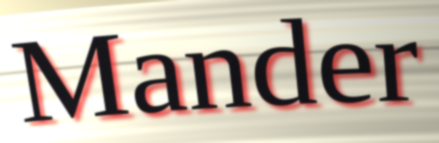
Mander